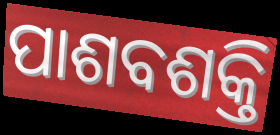
ପାଶବଶକ୍ତି